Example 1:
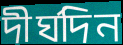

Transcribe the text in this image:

দীর্ঘদিন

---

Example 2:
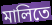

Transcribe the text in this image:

মালিতে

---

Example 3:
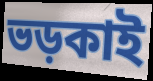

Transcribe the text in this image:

ভড়কাই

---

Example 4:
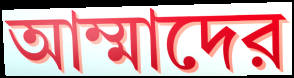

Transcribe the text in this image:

আম্মাদের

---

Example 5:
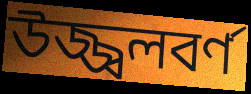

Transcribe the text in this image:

উজ্জ্বলবর্ণ